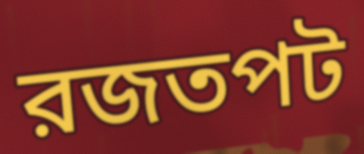
রজতপট